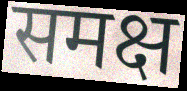
समक्ष